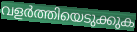
വളർത്തിയെടുക്കുക